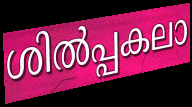
ശിൽപ്പകലാ